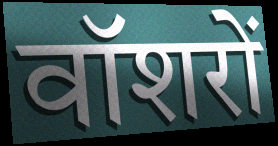
वॉशरों